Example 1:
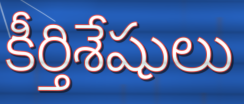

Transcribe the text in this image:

కీర్తిశేషులు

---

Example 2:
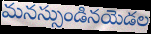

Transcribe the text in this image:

మనస్సుండినయెడల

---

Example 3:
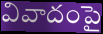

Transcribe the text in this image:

వివాదంపై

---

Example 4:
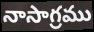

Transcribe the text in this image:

నాసాగ్రము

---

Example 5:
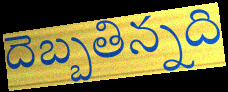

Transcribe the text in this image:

దెబ్బతిన్నది